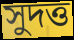
সুদত্ত